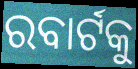
ରବାର୍ଟକୁ